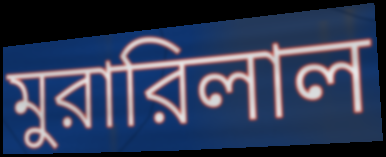
মুরারিলাল